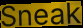
Sneak